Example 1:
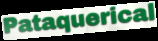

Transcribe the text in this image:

Pataquerical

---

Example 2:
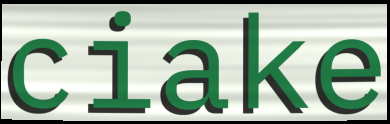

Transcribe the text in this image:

ciake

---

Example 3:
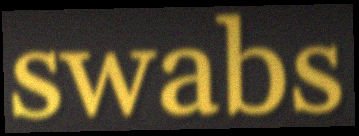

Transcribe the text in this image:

swabs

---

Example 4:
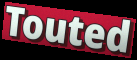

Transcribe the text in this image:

Touted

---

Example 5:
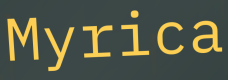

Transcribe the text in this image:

Myrica